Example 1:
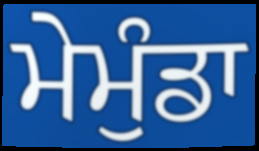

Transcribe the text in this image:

ਮੇਮੁੰਡਾ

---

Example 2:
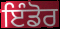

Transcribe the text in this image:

ਇੰਡੋਰ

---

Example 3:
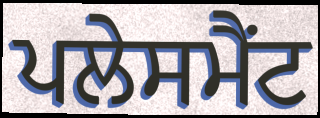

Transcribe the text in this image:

ਪਲੇਸਮੈਂਟ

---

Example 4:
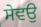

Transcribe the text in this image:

ਸੇਵਉ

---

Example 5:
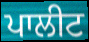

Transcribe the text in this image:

ਪਾਲੀਟ